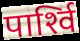
पार्श्वि